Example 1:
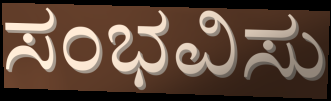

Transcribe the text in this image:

ಸಂಭವಿಸು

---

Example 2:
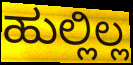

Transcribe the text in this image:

ಹುಲ್ಲಿಲ್ಲ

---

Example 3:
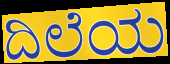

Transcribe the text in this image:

ದಿಲೆಯ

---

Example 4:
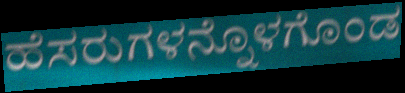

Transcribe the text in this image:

ಹೆಸರುಗಳನ್ನೊಳಗೊಂಡ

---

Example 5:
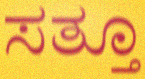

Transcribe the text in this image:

ಸತ್ತೂ